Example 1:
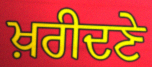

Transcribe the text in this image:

ਖ਼ਰੀਦਣੇ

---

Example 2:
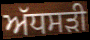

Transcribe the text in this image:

ਅੱਧਸੜੀ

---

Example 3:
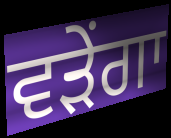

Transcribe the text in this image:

ਵੜੇਂਗਾ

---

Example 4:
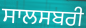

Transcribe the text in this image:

ਸਾਲਸਬਰੀ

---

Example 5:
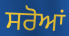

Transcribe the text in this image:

ਸਰੋਆਂ